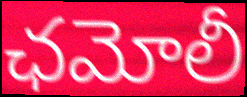
ఛమోలీ